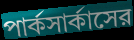
পার্কসার্কাসের